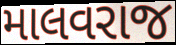
માલવરાજ